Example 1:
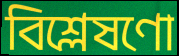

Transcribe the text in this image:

বিশ্লেষণো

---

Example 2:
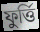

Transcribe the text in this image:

ফুৰ্ত্তি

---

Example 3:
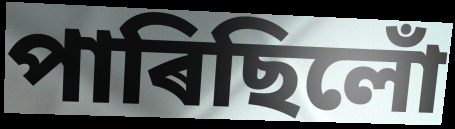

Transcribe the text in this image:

পাৰিছিলোঁ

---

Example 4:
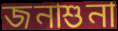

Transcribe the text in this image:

জনাশুনা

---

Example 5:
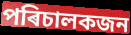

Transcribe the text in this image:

পৰিচালকজন